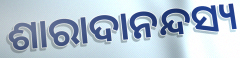
ଶାରାଦାନନ୍ଦସ୍ୟ